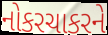
નોકરચાકરને